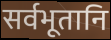
सर्वभूतानि